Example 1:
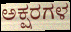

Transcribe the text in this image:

ಅಕ್ಷರಗಳ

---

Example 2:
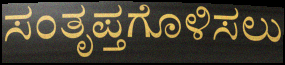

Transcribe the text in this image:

ಸಂತೃಪ್ತಗೊಳಿಸಲು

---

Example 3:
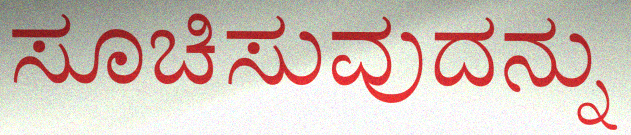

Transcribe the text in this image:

ಸೂಚಿಸುವುದನ್ನು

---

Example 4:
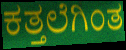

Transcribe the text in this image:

ಕತ್ತಲೆಗಿಂತ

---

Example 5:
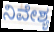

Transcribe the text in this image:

ನಿವೇಶ್ಯ